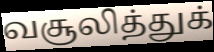
வசூலித்துக்